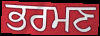
ਭਰਮਣ